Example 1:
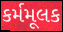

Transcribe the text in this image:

કર્મમૂલક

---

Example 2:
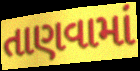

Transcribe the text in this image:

તાણવામાં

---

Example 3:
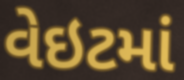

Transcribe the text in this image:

વેઇટમાં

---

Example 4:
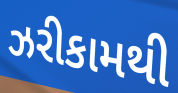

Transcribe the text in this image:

ઝરીકામથી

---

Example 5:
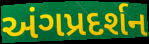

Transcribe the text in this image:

અંગપ્રદર્શન